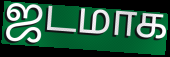
ஜடமாக